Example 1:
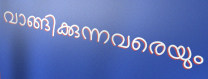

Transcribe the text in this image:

വാങ്ങിക്കുന്നവരെയും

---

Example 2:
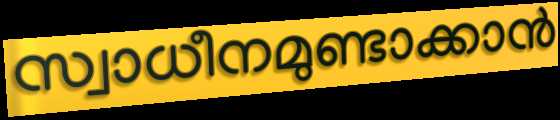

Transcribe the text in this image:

സ്വാധീനമുണ്ടാക്കാൻ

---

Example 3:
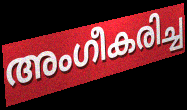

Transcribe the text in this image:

അംഗീകരിച്ച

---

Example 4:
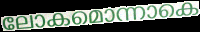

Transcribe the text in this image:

ലോകമൊന്നാകെ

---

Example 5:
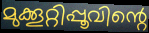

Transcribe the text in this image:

മുക്കൂറ്റിപ്പൂവിന്റെ